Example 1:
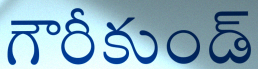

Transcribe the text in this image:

గౌరీకుండ్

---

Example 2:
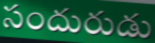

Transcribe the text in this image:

సందురుడు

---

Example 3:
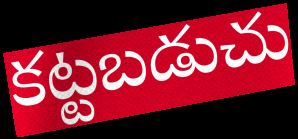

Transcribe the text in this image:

కట్టబడుచు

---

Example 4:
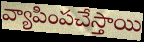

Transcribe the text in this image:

వ్యాపింపచేస్తాయి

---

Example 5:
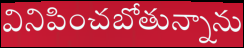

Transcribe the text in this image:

వినిపించబోతున్నాను